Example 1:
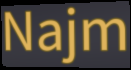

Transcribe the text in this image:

Najm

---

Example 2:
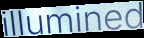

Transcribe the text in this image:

illumined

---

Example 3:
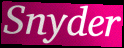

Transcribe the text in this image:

Snyder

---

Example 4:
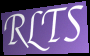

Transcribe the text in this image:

RLTS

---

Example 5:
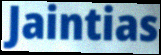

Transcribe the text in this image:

Jaintias